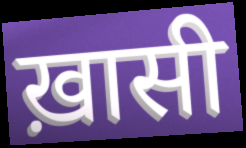
ख़ासी